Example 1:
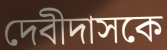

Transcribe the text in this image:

দেবীদাসকে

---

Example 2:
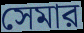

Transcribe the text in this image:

সেমার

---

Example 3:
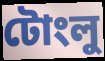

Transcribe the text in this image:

টোংলু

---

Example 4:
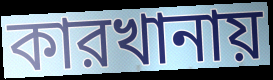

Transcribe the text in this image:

কারখানায়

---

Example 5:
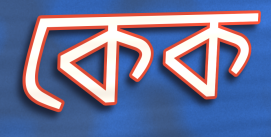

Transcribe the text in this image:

কেক